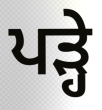
ਪਡ਼੍ਹੇ